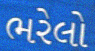
ભરેલો